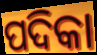
ପଦିକା